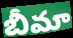
బీమా